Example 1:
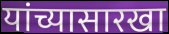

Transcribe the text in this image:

यांच्यासारखा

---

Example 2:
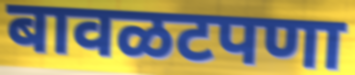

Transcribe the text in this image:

बावळटपणा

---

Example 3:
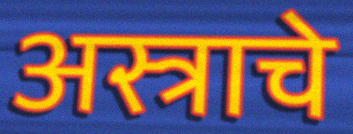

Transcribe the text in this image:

अस्त्राचे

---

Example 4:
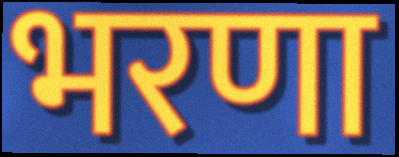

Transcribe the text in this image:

भरणा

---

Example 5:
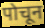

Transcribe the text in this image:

पोचून